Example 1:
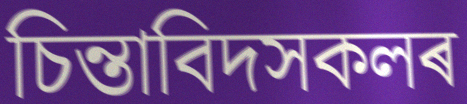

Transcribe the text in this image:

চিন্তাবিদসকলৰ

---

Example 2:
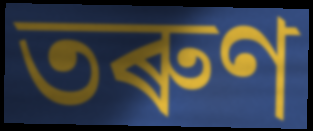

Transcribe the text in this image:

তৰুণ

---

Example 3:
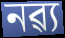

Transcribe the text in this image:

নৱ্য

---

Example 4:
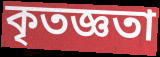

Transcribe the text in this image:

কৃতজ্ঞতা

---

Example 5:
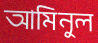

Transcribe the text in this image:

আমিনুল